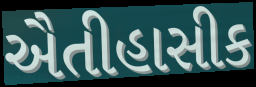
ઐતીહાસીક